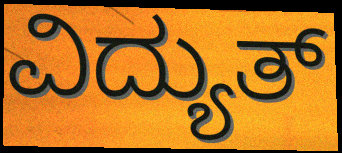
ವಿದ್ಯುತ್